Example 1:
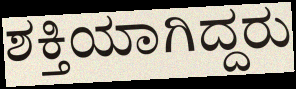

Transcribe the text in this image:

ಶಕ್ತಿಯಾಗಿದ್ದರು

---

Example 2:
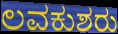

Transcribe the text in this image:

ಲವಕುಶರು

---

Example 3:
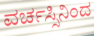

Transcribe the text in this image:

ವರ್ಚಸ್ಸಿನಿಂದ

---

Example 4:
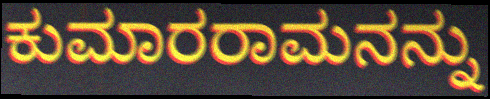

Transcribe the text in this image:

ಕುಮಾರರಾಮನನ್ನು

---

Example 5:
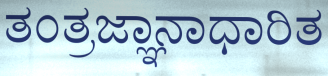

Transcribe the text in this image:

ತಂತ್ರಜ್ಞಾನಾಧಾರಿತ